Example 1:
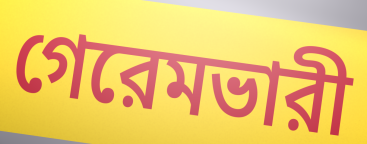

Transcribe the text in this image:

গেরেমভারী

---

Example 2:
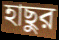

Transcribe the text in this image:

হাছুর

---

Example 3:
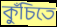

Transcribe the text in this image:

কুঁচিতে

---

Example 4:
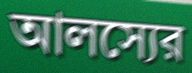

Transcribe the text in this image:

আলস্যের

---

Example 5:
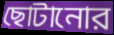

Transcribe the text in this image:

ছোটানোর